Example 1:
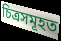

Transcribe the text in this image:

চিত্ৰসমূহত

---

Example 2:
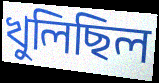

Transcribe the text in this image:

খুলিছিল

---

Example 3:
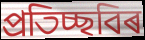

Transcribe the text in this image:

প্ৰতিচ্ছবিৰ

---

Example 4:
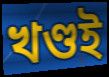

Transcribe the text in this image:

খণ্ডই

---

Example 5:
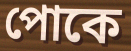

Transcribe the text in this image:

পোকে